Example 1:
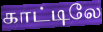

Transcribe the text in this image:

காட்டிலே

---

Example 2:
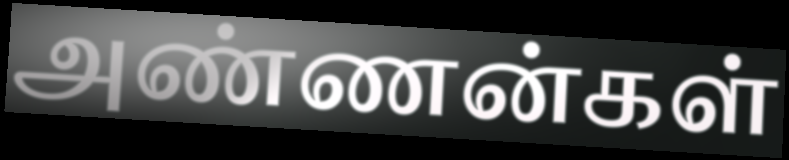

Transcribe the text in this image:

அண்ணன்கள்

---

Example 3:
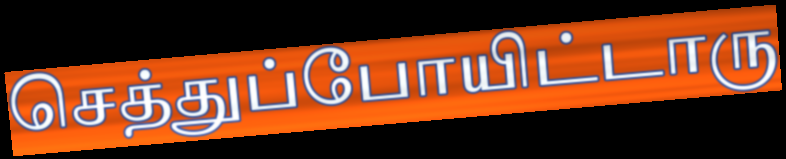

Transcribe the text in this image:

செத்துப்போயிட்டாரு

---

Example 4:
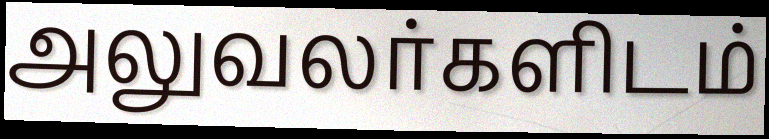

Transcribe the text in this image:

அலுவலர்களிடம்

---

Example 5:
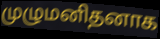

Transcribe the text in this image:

முழுமனிதனாக